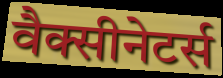
वैक्सीनेटर्स